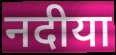
नदीया